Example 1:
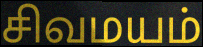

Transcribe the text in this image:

சிவமயம்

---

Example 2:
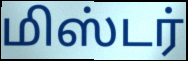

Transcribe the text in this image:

மிஸ்டர்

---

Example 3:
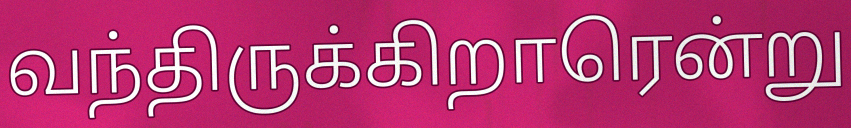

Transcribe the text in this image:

வந்திருக்கிறாரென்று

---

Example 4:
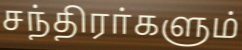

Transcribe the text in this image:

சந்திரர்களும்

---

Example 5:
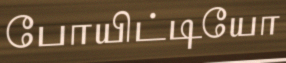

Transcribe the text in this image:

போயிட்டியோ